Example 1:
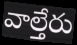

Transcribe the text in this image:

వాల్తేరు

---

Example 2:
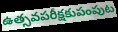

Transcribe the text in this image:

ఉత్సవపరీక్షకుపంపుట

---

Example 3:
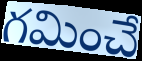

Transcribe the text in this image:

గమించే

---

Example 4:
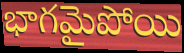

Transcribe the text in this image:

భాగమైపోయి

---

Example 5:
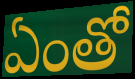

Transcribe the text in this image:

ఏంతో